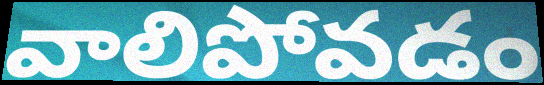
వాలిపోవడం